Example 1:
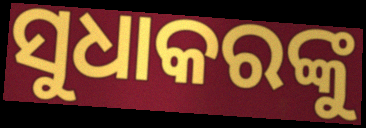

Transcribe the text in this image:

ସୁଧାକରଙ୍କୁ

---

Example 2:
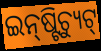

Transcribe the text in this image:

ଇନ୍‌ଷ୍ଟିଚ୍ୟୁଟ୍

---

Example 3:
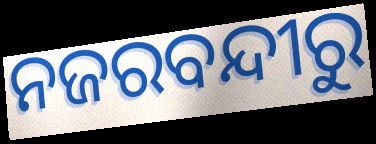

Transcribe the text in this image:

ନଜରବନ୍ଦୀରୁ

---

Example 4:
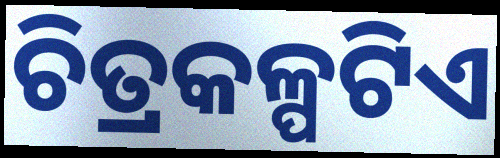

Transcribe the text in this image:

ଚିତ୍ରକଳ୍ପଟିଏ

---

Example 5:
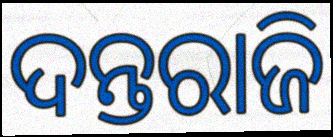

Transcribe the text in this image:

ଦନ୍ତରାଜି